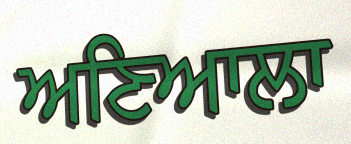
ਅਣਿਆਲਾ